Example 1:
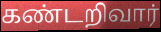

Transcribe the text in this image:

கண்டறிவார்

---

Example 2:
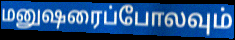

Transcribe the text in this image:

மனுஷரைப்போலவும்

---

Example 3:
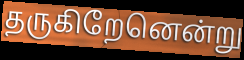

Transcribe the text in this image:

தருகிறேனென்று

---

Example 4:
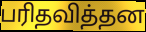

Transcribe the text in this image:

பரிதவித்தன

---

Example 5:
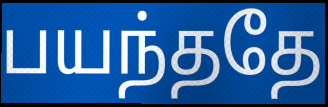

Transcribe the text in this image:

பயந்ததே